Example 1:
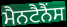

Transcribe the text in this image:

ਮੈਨਟੈਨੈਂਸ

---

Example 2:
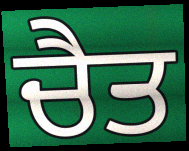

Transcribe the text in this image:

ਚੈਤ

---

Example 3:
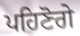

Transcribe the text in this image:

ਪਹਿਣੋਗੇ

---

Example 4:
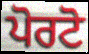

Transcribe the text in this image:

ਪੋਰਟੋ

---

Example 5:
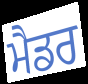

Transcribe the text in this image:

ਮੈਡਰ